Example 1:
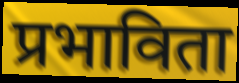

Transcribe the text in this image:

प्रभाविता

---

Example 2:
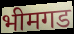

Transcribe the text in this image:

भीमगड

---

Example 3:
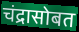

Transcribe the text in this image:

चंद्रासोबत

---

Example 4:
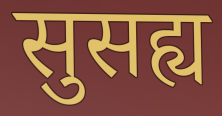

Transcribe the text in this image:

सुसह्य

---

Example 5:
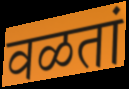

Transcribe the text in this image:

वळतां